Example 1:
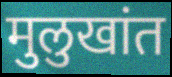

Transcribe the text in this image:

मुलुखांत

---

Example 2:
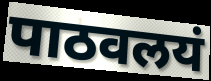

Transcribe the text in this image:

पाठवलयं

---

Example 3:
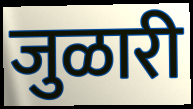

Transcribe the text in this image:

जुळारी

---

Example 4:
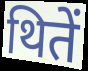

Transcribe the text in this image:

थितें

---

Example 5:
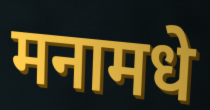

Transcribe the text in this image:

मनामधे